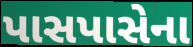
પાસપાસેના